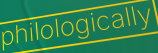
philologically